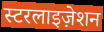
स्टरलाइज़ेशन